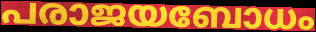
പരാജയബോധം